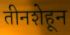
तीनशेहून